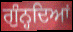
ਗੁੰਨ੍ਹਦਿਆਂ